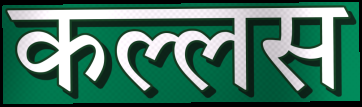
कल्लस